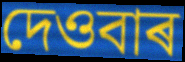
দেওবাৰ